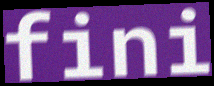
fini